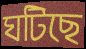
ঘটিছে